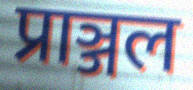
प्राञ्जल